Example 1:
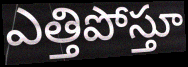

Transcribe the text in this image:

ఎత్తిపోస్తూ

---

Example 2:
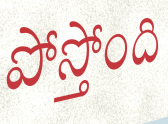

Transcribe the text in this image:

పోస్తోంది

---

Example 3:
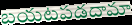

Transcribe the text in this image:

బయటపడదామా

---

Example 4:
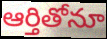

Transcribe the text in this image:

ఆర్తితోనూ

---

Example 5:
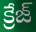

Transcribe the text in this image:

క్రేజ్